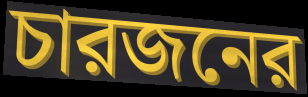
চারজনের